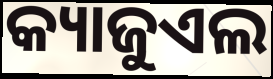
କ୍ୟାଜୁଏଲ